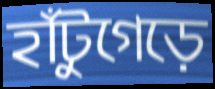
হাঁটুগেড়ে